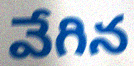
వేగిన